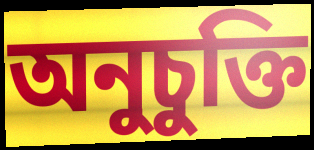
অনুচুক্তি